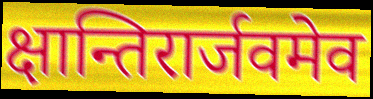
क्षान्तिरार्जवमेव